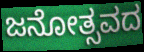
ಜನೋತ್ಸವದ